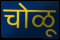
चोळू